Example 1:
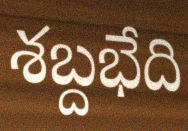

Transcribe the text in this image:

శబ్దభేది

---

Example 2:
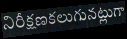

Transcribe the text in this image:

నిరీక్షణకలుగునట్లుగా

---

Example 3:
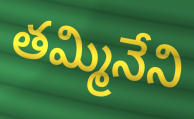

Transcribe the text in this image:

తమ్మినేని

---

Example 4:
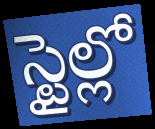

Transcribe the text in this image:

స్టైల్లో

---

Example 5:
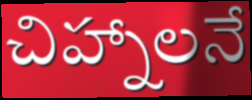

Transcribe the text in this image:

చిహ్నాలనే